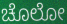
ಚೊಲೋ